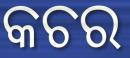
କଚର